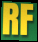
RF